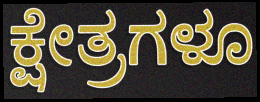
ಕ್ಷೇತ್ರಗಳೂ